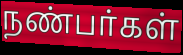
நண்பர்கள்